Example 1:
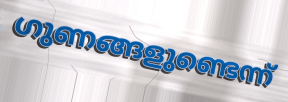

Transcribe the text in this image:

ഗുണങ്ങളുണ്ടെന്ന്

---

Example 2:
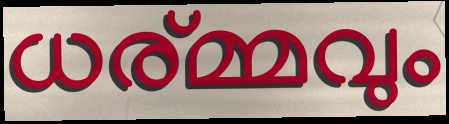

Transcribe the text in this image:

ധര്മ്മവും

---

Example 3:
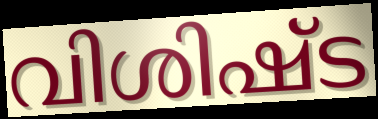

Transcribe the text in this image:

വിശിഷ്ട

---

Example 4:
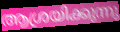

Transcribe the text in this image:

ആശ്രയിക്കുന്നു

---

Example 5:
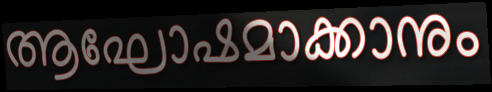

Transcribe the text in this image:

ആഘോഷമാക്കാനും